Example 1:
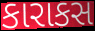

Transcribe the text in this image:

કારાકસ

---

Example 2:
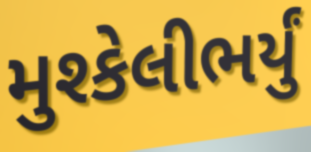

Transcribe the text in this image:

મુશ્કેલીભર્યું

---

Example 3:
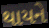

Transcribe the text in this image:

થાયને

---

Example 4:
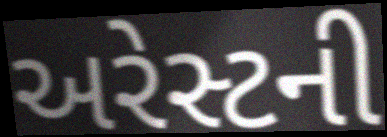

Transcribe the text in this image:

અરેસ્ટની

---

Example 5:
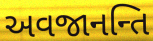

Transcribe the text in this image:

અવજાનન્તિ